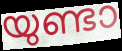
യുണ്ടാ